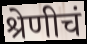
श्रेणीचं